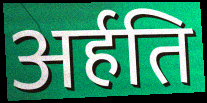
अर्हति